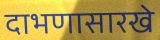
दाभणासारखे